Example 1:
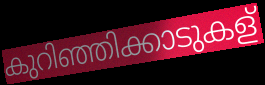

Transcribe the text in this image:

കുറിഞ്ഞിക്കാടുകള്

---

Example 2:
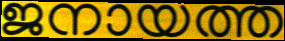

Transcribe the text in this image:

ജനായത്ത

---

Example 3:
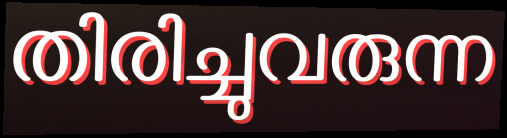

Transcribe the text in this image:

തിരിച്ചുവരുന്ന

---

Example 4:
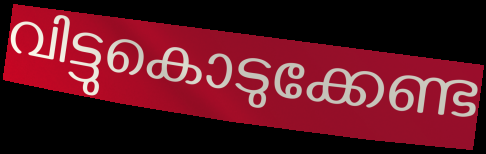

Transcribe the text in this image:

വിട്ടുകൊടുക്കേണ്ട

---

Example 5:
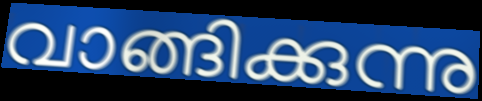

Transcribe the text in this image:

വാങ്ങിക്കുന്നു